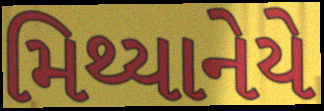
મિથ્યાનેયે